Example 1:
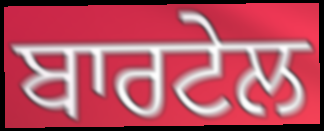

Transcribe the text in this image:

ਬਾਰਟੇਲ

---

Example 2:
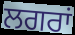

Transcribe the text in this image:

ਲਗਰਾਂ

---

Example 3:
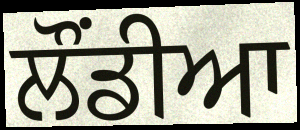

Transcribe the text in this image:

ਲੌਂਡੀਆ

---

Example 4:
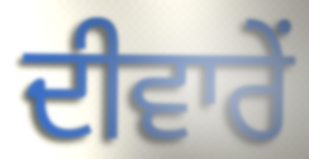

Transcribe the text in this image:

ਦੀਵਾਰੇਂ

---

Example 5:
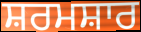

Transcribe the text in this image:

ਸ਼ਰਮਸ਼ਾਰ